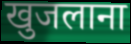
खुजलाना